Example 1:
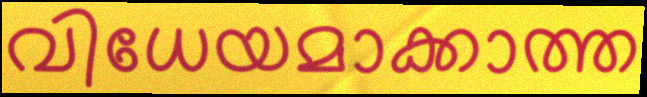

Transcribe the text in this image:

വിധേയമാക്കാത്ത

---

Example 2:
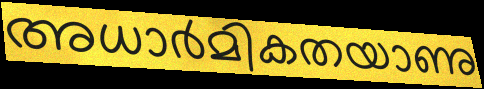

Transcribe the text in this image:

അധാർമികതയാണു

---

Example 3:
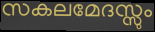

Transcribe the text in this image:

സകലമേദസ്സും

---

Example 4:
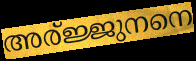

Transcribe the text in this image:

അര്ജ്ജുനനെ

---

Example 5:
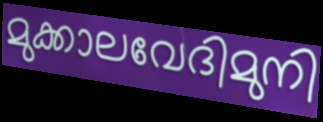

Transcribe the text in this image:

മുക്കാലവേദിമുനി